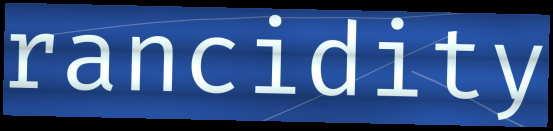
rancidity